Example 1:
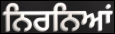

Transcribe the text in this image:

ਨਿਰਨਿਆਂ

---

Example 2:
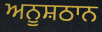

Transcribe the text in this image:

ਅਨੂਸ਼ਠਾਨ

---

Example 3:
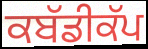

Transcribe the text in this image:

ਕਬੱਡੀਕੱਪ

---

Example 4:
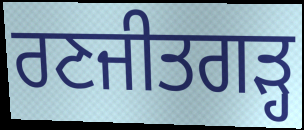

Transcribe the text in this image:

ਰਣਜੀਤਗੜ੍ਹ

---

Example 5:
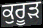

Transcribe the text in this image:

ਕੁਰੂੜ